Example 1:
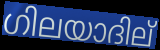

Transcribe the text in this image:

ഗിലയാദില്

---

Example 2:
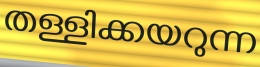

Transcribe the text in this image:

തള്ളിക്കയറുന്ന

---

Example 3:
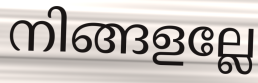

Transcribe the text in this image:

നിങ്ങളല്ലേ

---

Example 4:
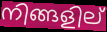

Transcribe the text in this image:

നിങ്ങളില്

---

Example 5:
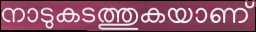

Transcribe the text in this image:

നാടുകടത്തുകയാണ്